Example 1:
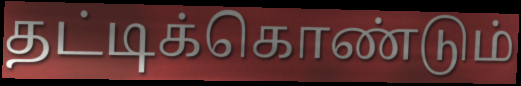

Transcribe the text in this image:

தட்டிக்கொண்டும்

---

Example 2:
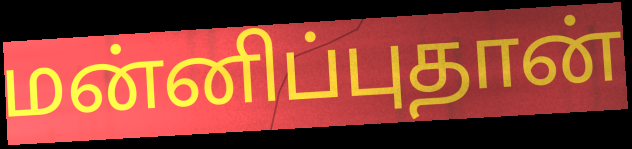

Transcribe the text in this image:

மன்னிப்புதான்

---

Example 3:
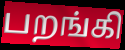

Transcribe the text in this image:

பறங்கி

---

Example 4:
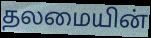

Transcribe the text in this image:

தலமையின்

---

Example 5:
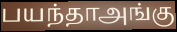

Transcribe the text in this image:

பயந்தாஅங்கு